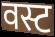
वस्ट